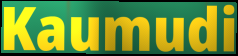
Kaumudi